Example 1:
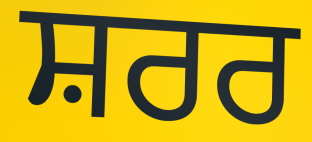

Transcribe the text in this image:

ਸ਼ਰਰ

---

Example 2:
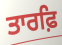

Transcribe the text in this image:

ਤਾਰਫ਼ਿ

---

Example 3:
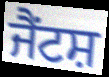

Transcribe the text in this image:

ਜੈਂਟਸ਼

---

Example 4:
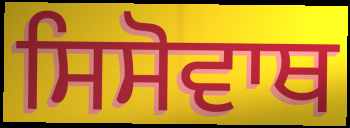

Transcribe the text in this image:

ਸਿਸੋਵਾਥ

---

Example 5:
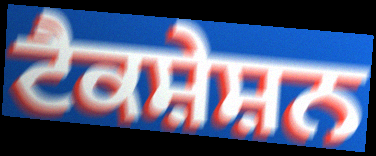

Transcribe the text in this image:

ਟੈਕਸ਼ੇਸ਼ਨ